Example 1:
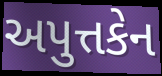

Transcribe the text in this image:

અપુત્તકેન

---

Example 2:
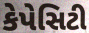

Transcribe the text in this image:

કેપેસિટી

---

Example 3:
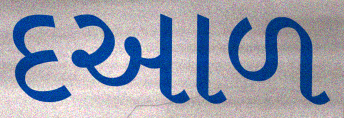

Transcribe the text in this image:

દઆળ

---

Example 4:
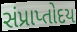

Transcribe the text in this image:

સંપ્રાપ્તોદય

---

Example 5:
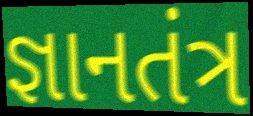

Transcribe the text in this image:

જ્ઞાનતંત્ર